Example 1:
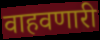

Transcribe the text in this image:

वाहवणारी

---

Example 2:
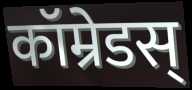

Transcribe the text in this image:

कॉम्रेडस्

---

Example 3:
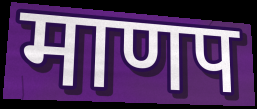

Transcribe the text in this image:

माणप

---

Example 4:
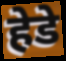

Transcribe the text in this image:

हेडे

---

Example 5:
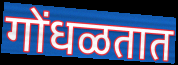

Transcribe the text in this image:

गोंधळतात